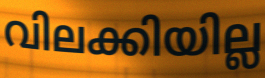
വിലക്കിയില്ല